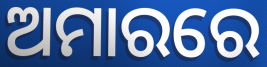
ଅମାରରେ